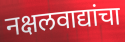
नक्षलवाद्यांचा